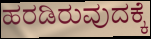
ಹರಡಿರುವುದಕ್ಕೆ